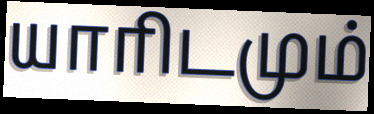
யாரிடமும்